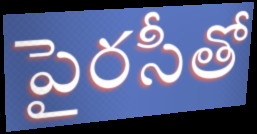
పైరసీతో